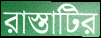
রাস্তাটির